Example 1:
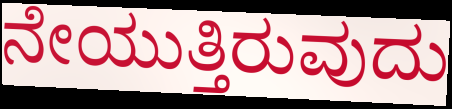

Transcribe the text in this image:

ನೇಯುತ್ತಿರುವುದು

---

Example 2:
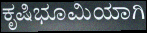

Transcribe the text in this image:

ಕೃಷಿಭೂಮಿಯಾಗಿ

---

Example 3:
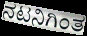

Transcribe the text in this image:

ನಟನಿಗಿಂತ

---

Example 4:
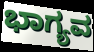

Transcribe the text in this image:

ಭಾಗ್ಯವ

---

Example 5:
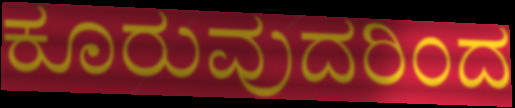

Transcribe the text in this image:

ಕೂರುವುದರಿಂದ